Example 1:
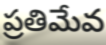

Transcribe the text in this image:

ప్రతిమేవ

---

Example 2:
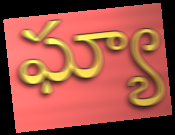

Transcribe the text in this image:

ఘ్యా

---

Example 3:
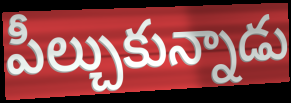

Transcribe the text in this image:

పీల్చుకున్నాడు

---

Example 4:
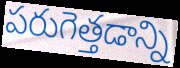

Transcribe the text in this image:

పరుగెత్తడాన్ని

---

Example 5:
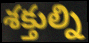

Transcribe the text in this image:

శక్తుల్ని